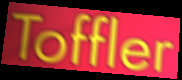
Toffler